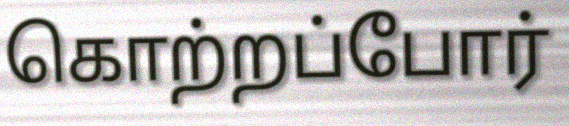
கொற்றப்போர்